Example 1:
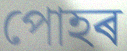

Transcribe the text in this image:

পোহৰ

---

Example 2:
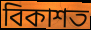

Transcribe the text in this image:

বিকাশত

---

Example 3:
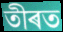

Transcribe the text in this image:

তীৰত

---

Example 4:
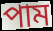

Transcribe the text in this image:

পাম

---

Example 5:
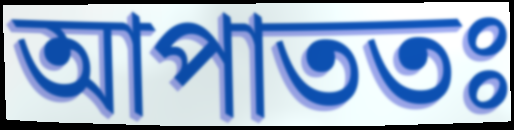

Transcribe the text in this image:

আপাততঃ